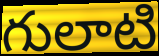
గులాటి